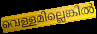
വെള്ളമില്ലെങ്കിൽ